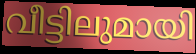
വീട്ടിലുമായി